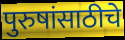
पुरुषांसाठीचे